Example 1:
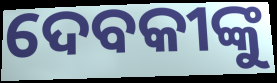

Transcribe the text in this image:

ଦେବକୀଙ୍କୁ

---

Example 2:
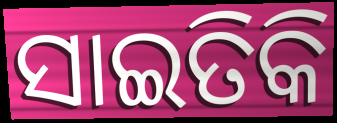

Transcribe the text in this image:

ସାଇତିକି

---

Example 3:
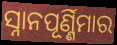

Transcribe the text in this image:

ସ୍ନାନପୂର୍ଣ୍ଣିମାର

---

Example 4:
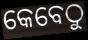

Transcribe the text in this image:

କେବେଠୁ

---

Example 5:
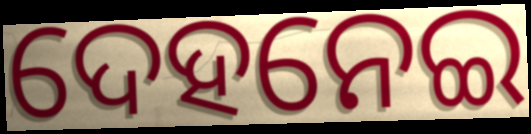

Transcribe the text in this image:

ଦେହନେଇ